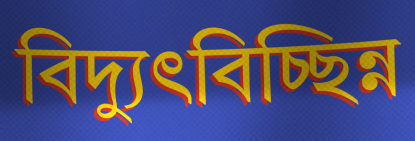
বিদ্যুৎবিচ্ছিন্ন